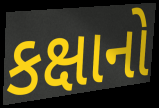
કક્ષાનો